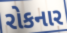
રોકનાર